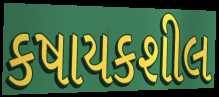
કષાયકશીલ